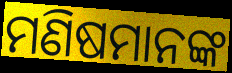
ମଣିଷମାନଙ୍କ